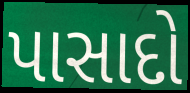
પાસાદો